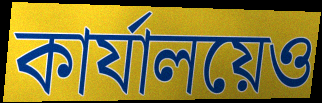
কার্যালয়েও